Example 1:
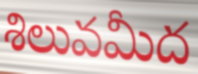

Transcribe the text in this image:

శిలువమీద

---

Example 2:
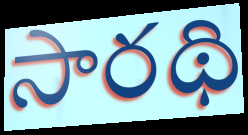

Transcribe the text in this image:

సారథి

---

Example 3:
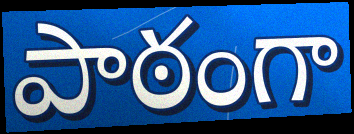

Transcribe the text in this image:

పాఠంగా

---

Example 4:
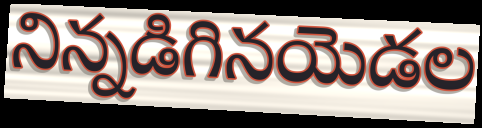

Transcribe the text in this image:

నిన్నడిగినయెడల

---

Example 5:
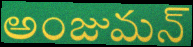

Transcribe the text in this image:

అంజుమన్